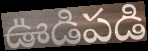
ఊడిపడి